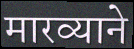
मारव्याने